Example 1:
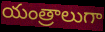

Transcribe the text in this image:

యంత్రాలుగా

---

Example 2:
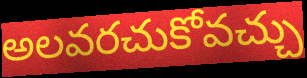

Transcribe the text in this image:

అలవరచుకోవచ్చు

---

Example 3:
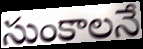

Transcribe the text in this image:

సుంకాలనే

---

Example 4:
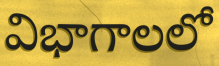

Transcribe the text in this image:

విభాగాలలో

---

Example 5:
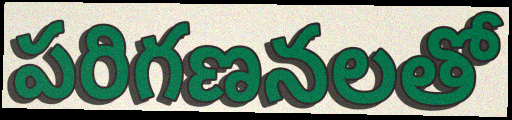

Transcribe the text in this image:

పరిగణనలతో